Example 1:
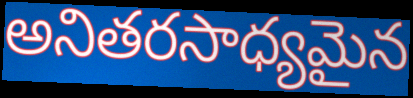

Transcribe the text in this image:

అనితరసాధ్యమైన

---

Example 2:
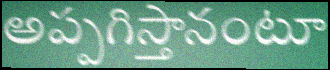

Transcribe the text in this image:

అప్పగిస్తానంటూ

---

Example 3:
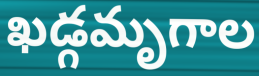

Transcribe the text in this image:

ఖడ్గమృగాల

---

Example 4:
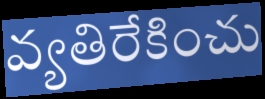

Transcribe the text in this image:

వ్యతిరేకించు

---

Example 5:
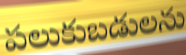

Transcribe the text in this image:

పలుకుబడులను